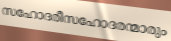
സഹോദരീസഹോദരന്മാരും